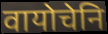
वायोचेनि